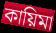
কায়িমা